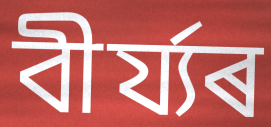
বীৰ্য্যৰ